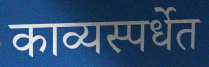
काव्यस्पर्धेत